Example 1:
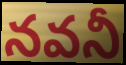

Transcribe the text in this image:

నవనీ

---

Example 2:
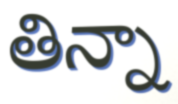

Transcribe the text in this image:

తిన్నా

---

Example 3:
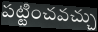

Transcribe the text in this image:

పట్టించవచ్చు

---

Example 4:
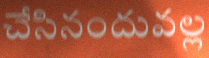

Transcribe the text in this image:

చేసినందువల్ల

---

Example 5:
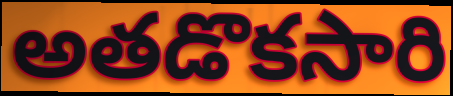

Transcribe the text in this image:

అతడొకసారి